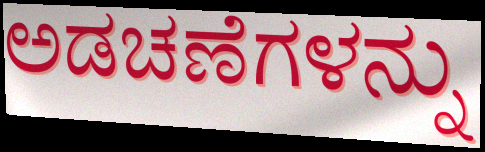
ಅಡಚಣೆಗಳನ್ನು